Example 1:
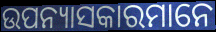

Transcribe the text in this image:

ଉପନ୍ୟାସକାରମାନେ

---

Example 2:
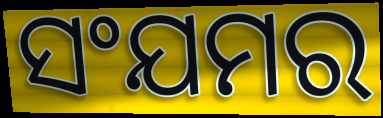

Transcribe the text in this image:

ସଂଯମର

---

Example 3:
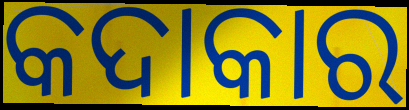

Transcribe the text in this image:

କଦାକାର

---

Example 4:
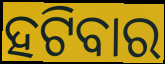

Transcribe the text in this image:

ହଟିବାର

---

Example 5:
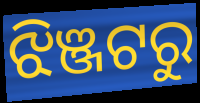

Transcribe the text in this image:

ଝିଞ୍ଜଟରୁ